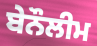
ਬੇਨੌਲੀਮ